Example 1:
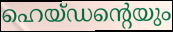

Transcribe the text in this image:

ഹെയ്ഡന്റെയും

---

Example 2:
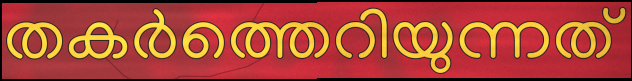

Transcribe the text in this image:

തകർത്തെറിയുന്നത്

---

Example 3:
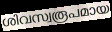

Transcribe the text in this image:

ശിവസ്വരൂപമായ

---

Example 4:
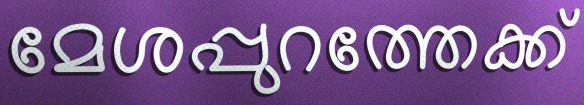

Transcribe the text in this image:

മേശപ്പുറത്തേക്ക്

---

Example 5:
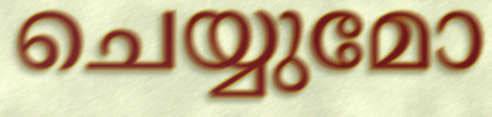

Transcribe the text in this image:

ചെയ്യുമോ